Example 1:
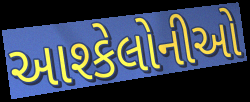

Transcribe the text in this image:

આશ્કેલોનીઓ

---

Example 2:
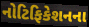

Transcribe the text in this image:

નોટિફિકેશનના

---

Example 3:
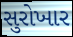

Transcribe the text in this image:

સુરોખાર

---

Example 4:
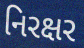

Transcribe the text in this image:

નિરક્ષર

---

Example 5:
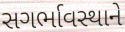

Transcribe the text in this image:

સગર્ભાવસ્થાને